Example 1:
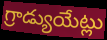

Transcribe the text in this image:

గ్రాడ్యుయేట్లు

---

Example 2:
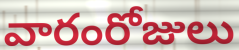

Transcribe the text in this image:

వారంరోజులు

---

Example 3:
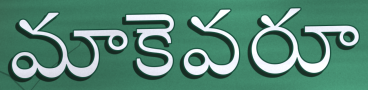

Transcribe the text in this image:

మాకెవరూ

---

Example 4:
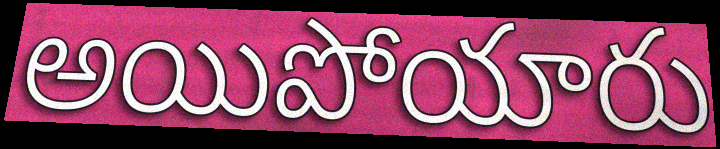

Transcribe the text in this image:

అయిపోయారు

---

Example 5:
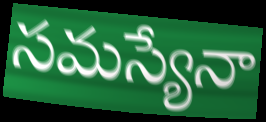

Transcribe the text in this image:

సమస్యేనా